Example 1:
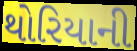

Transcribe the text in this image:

થોરિયાની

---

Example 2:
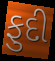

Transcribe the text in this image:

ફુદી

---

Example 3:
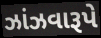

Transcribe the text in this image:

ઝાંઝવારૂપે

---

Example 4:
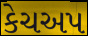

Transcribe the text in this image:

કેચઅપ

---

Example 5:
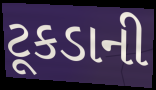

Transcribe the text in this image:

ટૂકડાની